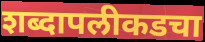
शब्दापलीकडचा